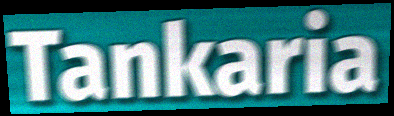
Tankaria